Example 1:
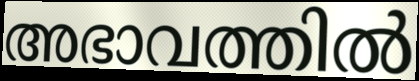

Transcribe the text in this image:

അഭാവത്തിൽ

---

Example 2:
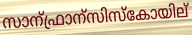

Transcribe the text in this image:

സാന്ഫ്രാന്സിസ്കോയില്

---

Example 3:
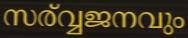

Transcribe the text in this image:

സര്വ്വജനവും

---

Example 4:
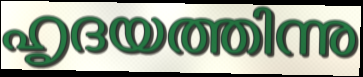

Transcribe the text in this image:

ഹൃദയത്തിന്നു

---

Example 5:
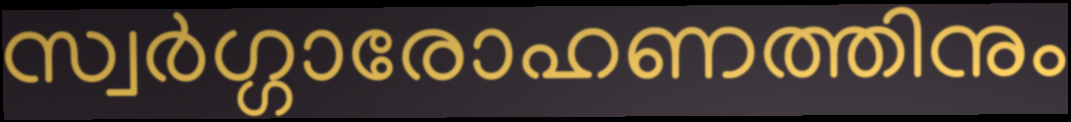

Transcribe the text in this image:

സ്വർഗ്ഗാരോഹണത്തിനും